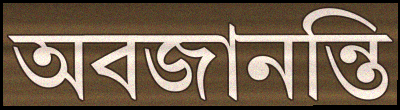
অবজানন্তি